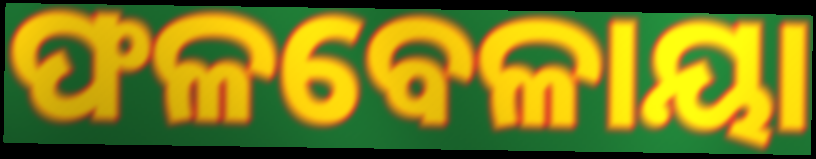
ଫଳବେଳାୟା